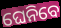
ଘେନିବେ